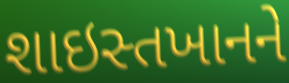
શાઇસ્તખાનને